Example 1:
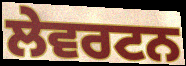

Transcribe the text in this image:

ਲੇਵਰਟਨ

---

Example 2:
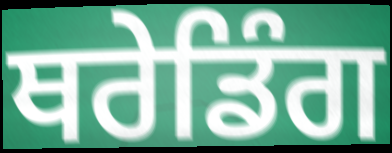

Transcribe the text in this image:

ਥਰੇਡਿੰਗ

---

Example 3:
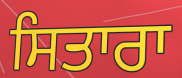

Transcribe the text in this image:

ਸਿਤਾਰਾ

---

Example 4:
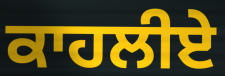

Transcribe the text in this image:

ਕਾਹਲੀਏ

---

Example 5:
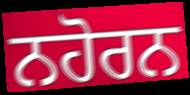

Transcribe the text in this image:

ਨਹੋਰਨ